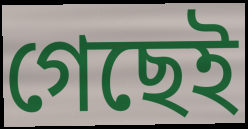
গেছেই